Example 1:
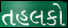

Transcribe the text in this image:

તહલકો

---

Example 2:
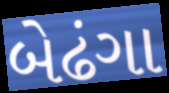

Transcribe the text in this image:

બેઢંગા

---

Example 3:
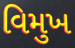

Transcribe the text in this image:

વિમુખ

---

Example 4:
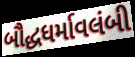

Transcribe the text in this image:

બૌદ્ધધર્માવલંબી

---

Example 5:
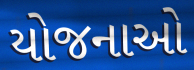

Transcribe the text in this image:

યોજનાઓ